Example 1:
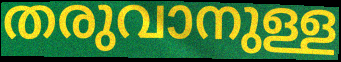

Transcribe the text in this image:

തരുവാനുള്ള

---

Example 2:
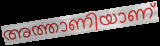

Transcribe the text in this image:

അത്താണിയാണ്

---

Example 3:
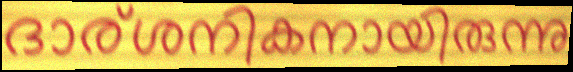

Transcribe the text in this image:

ദാര്ശനികനായിരുന്നു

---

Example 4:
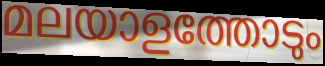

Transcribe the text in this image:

മലയാളത്തോടും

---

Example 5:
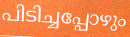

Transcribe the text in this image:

പിടിച്ചപ്പോഴും